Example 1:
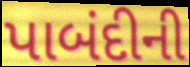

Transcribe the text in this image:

પાબંદીની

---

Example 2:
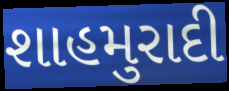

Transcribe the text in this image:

શાહમુરાદી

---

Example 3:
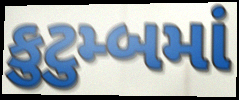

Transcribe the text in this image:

કુટુમ્બમાં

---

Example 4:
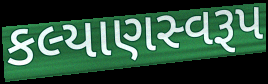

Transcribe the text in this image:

કલ્યાણસ્વરૂપ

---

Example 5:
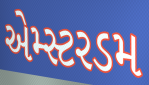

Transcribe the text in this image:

એમ્સ્ટરડમ